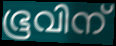
ഭൂവിന്